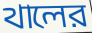
থালের